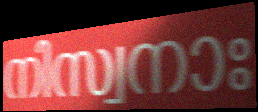
നിസ്വനാഃ